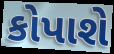
કોપાશે